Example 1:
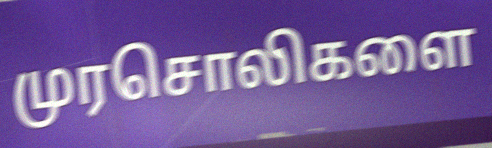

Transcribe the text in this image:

முரசொலிகளை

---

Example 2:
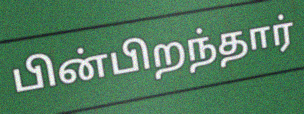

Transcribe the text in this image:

பின்பிறந்தார்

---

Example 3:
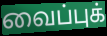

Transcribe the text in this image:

வைப்புக்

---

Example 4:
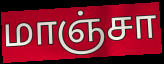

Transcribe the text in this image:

மாஞ்சா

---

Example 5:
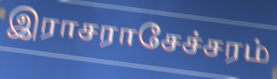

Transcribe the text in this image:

இராசராசேச்சரம்